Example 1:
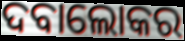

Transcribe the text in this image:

ଦବାଲୋକର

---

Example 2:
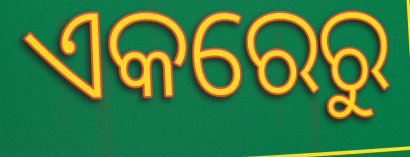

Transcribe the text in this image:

ଏକରେରୁ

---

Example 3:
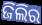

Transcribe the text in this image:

ଜିଲିର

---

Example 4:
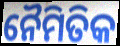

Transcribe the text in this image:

ନୈମିତିକ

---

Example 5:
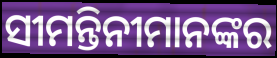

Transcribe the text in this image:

ସୀମନ୍ତିନୀମାନଙ୍କର